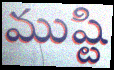
ముష్టి